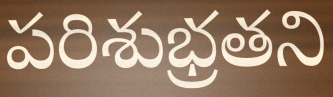
పరిశుభ్రతని